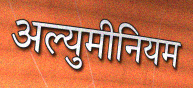
अल्युमीनियम